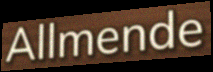
Allmende